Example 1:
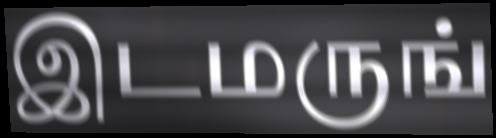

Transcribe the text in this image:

இடமருங்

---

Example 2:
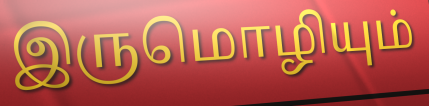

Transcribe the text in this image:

இருமொழியும்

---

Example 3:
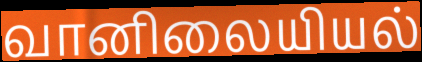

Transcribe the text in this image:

வானிலையியல்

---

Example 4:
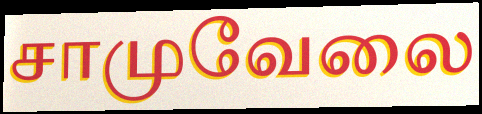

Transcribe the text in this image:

சாமுவேலை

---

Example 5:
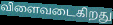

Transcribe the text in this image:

விளைவடைகிறது